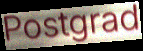
Postgrad